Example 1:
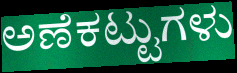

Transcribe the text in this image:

ಅಣೆಕಟ್ಟುಗಳು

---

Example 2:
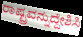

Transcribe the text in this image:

ರಾಷ್ಟ್ರವನ್ನುದ್ದೇಶಿಸಿ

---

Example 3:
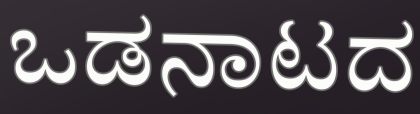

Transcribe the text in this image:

ಒಡನಾಟದ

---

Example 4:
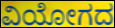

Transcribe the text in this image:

ವಿಯೋಗದ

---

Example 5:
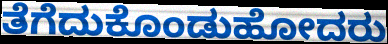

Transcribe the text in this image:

ತೆಗೆದುಕೊಂಡುಹೋದರು